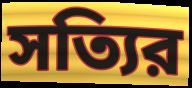
সত্যির